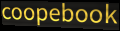
coopebook